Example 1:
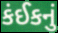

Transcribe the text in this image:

કંઈકનું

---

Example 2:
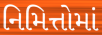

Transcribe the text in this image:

નિમિત્તોમાં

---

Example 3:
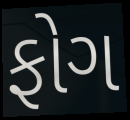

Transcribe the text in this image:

ફોગ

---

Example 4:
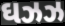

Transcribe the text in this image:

ઘઝઝ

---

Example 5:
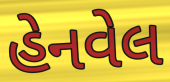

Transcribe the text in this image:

હેનવેલ